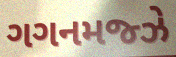
ગગનમજ્ઝે